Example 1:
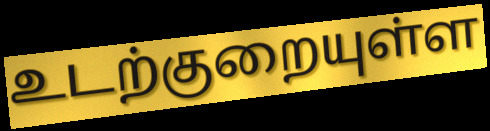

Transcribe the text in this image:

உடற்குறையுள்ள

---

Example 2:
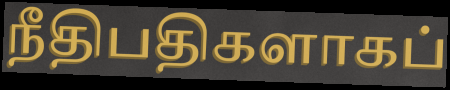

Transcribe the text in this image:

நீதிபதிகளாகப்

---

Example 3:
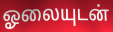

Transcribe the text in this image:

ஓலையுடன்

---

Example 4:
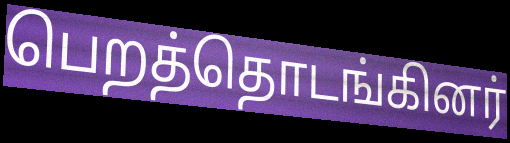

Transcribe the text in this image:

பெறத்தொடங்கினர்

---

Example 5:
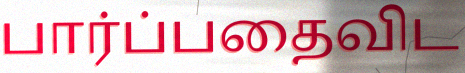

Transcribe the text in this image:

பார்ப்பதைவிட